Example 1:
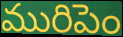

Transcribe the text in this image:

మురిపెం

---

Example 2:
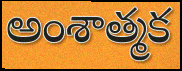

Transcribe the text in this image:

అంశాత్మక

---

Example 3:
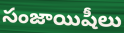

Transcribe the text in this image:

సంజాయిషీలు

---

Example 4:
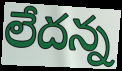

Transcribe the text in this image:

లేదన్న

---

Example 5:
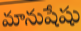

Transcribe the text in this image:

మానుషేషు